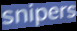
snipers